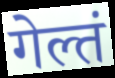
गेल्तं